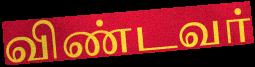
விண்டவர்